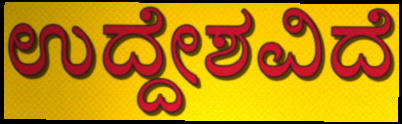
ಉದ್ದೇಶವಿದೆ